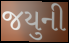
જયુની